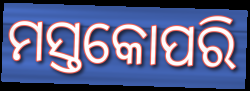
ମସ୍ତକୋପରି